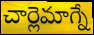
చార్లెమాగ్నే